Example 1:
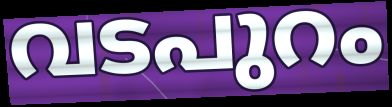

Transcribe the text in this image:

വടപുറം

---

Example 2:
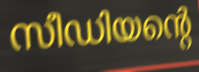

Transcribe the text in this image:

സീഡിയന്റെ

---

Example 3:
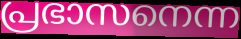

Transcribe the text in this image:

പ്രഭാസനെന്ന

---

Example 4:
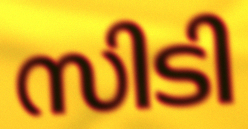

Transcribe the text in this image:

സിടി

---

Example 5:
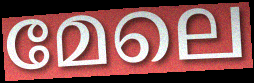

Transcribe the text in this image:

മേലെ